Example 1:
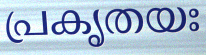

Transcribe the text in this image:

പ്രകൃതയഃ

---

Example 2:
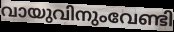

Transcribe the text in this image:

വായുവിനുംവേണ്ടി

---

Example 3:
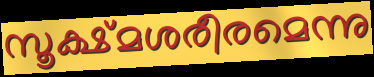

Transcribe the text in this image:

സൂക്ഷ്മശരീരമെന്നു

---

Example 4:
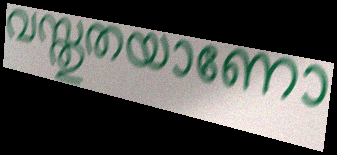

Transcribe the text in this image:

വസ്തുതയാണോ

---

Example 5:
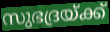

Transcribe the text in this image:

സുഭദ്രയ്ക്ക്